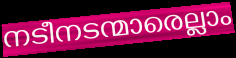
നടീനടന്മാരെല്ലാം